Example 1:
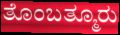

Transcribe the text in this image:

ತೊಂಬತ್ಮೂರು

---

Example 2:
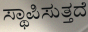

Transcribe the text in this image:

ಸ್ಥಾಪಿಸುತ್ತದೆ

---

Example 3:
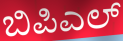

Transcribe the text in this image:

ಬಿಪಿಎಲ್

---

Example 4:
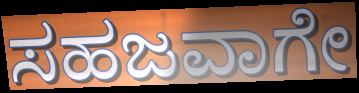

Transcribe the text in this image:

ಸಹಜವಾಗೇ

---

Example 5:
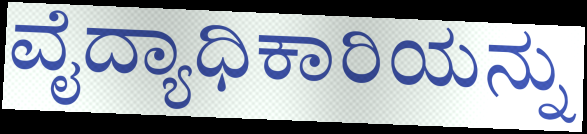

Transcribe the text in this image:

ವೈದ್ಯಾಧಿಕಾರಿಯನ್ನು